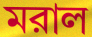
মরাল